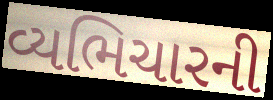
વ્યભિચારની